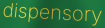
dispensory